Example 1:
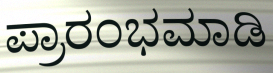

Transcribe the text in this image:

ಪ್ರಾರಂಭಮಾಡಿ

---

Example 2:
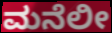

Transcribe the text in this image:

ಮನೆಲೀ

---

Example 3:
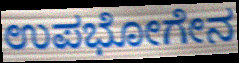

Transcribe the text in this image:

ಉಪಭೋಗೇನ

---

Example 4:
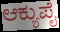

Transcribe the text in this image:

ಆಕ್ಯುಪೈ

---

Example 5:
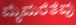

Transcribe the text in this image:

ಮೈಮರೆತೆವು